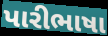
પારીભાષા